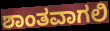
ಶಾಂತವಾಗಲಿ